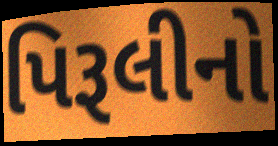
પિરૂલીનો